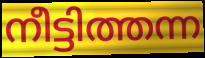
നീട്ടിത്തന്ന